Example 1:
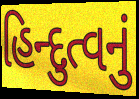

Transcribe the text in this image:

હિન્દુત્વનું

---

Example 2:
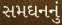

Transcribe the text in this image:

સમઘનનું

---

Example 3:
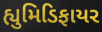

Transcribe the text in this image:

હ્યુમિડિફાયર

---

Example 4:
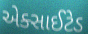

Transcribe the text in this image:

એક્સાઈટેડ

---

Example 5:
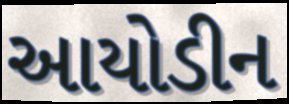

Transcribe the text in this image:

આયોડીન